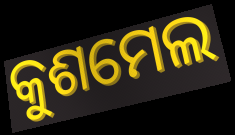
କୁଶମେଲ